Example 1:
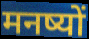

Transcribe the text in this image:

मनष्यों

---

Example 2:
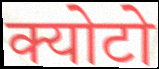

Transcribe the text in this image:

क्‍योटो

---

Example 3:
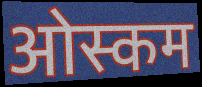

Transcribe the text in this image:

ओस्कम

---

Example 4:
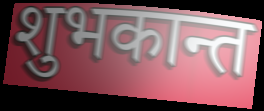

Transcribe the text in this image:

शुभकान्त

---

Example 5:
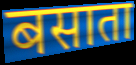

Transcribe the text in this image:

बसाता